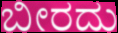
ಬೀರದು